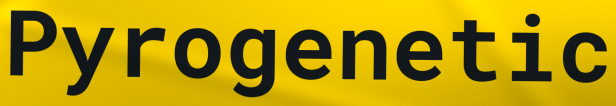
Pyrogenetic